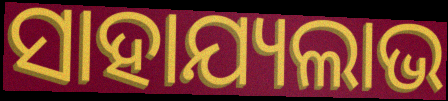
ସାହାଯ୍ୟଲାଭ